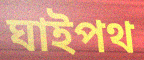
ঘাইপথ